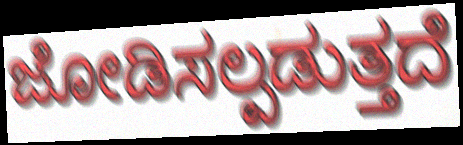
ಜೋಡಿಸಲ್ಪಡುತ್ತದೆ